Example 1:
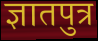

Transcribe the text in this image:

ज्ञातपुत्र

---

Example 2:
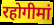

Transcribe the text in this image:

रहोगीमां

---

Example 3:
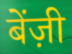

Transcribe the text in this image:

बेंज़ी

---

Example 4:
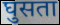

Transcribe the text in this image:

घुसता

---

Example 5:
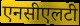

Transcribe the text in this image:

एनसीएलटी